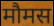
मौमस